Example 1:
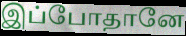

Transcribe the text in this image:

இப்போதானே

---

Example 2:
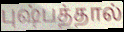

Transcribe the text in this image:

புஷ்பத்தால்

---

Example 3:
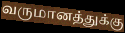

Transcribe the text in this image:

வருமானத்துக்கு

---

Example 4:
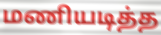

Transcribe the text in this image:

மணியடித்த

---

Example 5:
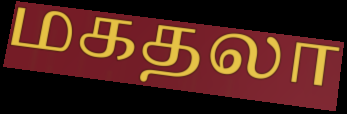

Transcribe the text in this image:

மகதலா